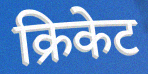
क्रिकेट